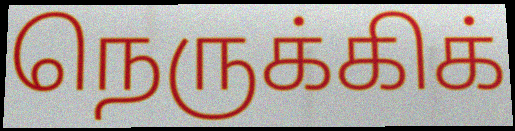
நெருக்கிக்